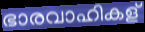
ഭാരവാഹികള്